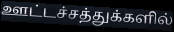
ஊட்டச்சத்துக்களில்